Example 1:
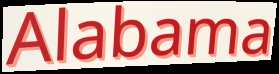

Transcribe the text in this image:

Alabama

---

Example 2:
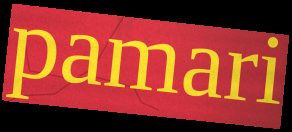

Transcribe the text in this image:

pamari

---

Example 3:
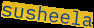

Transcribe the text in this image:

susheela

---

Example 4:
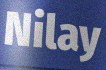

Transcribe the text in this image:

Nilay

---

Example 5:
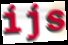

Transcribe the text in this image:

ijs